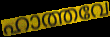
ഹാത്തവേ